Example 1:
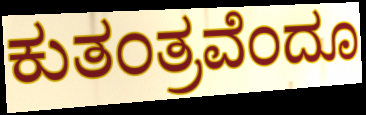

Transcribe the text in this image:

ಕುತಂತ್ರವೆಂದೂ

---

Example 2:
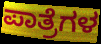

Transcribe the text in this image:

ಪಾತ್ರೆಗಳ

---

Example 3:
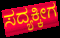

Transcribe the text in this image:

ಸದ್ಯಕ್ಕೀಗ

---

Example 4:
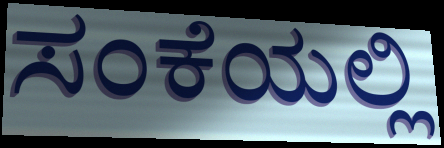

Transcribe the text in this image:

ಸಂಕೆಯಲ್ಲಿ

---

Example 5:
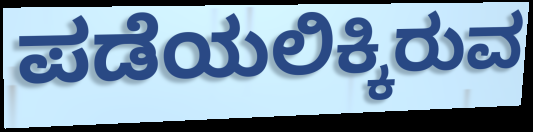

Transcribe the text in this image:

ಪಡೆಯಲಿಕ್ಕಿರುವ